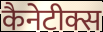
कैनेटीक्स